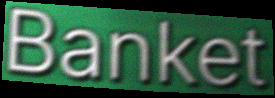
Banket